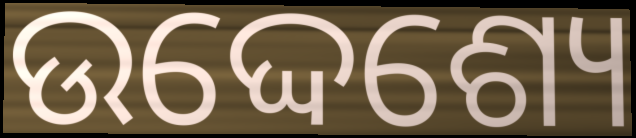
ଉଦ୍ଦେଶ୍ୟେ